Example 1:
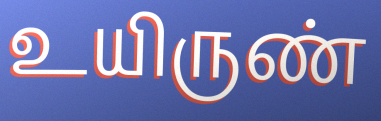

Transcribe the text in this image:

உயிருண்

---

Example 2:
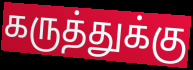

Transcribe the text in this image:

கருத்துக்கு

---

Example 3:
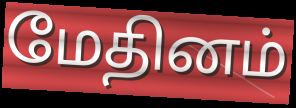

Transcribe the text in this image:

மேதினம்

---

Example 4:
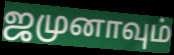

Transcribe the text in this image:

ஜமுனாவும்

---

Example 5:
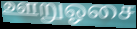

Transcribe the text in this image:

ஊறுஓசை